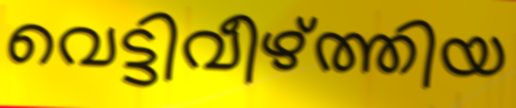
വെട്ടിവീഴ്ത്തിയ